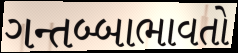
ગન્તબ્બાભાવતો